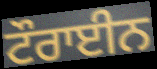
ਟੌਰਾਈਨ